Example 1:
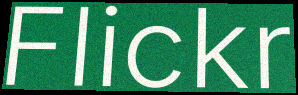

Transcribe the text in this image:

Flickr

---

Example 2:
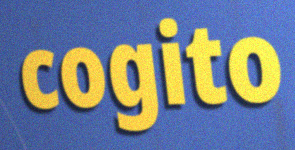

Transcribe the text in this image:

cogito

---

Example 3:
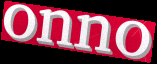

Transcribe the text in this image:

onno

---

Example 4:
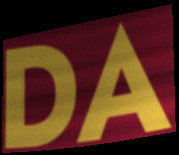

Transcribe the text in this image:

DA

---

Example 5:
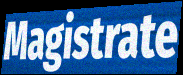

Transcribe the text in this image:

Magistrate